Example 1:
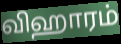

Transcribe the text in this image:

விஹாரம்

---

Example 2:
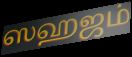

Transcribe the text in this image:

ஸஹஜம்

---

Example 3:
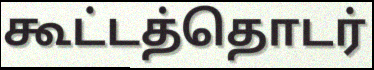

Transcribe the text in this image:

கூட்டத்தொடர்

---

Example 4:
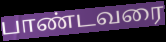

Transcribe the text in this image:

பாண்டவரை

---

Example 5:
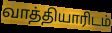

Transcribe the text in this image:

வாத்தியாரிடம்